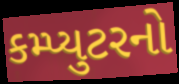
કમ્પ્યુટરનો